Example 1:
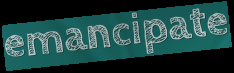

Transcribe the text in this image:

emancipate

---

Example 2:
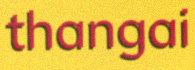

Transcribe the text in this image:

thangai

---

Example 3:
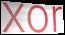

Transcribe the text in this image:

xor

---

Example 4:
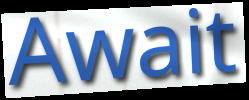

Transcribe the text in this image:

Await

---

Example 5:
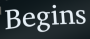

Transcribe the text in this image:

Begins